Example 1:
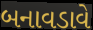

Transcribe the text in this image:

બનાવડાવે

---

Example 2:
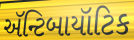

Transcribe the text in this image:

ઍન્ટિબાયૉટિક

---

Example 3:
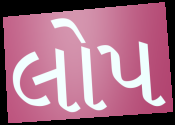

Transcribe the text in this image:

લોપ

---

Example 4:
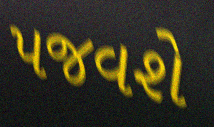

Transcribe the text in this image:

પજવશે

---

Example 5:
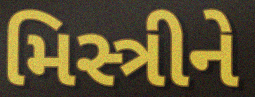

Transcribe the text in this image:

મિસ્ત્રીને